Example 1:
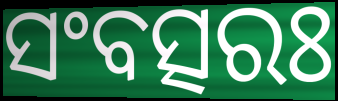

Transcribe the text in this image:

ସଂବତ୍ସରଃ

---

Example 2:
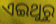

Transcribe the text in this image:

ଏଇଥୁରୁ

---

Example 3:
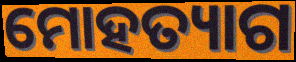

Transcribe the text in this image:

ମୋହତ୍ୟାଗ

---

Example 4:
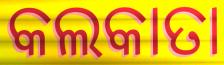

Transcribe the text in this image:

କଲକାତା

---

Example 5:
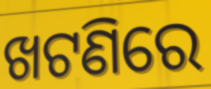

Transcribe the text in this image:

ଖଟଣିରେ